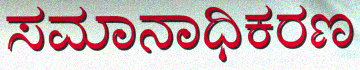
ಸಮಾನಾಧಿಕರಣ